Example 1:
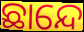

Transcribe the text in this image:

ଛାନ୍ଦେ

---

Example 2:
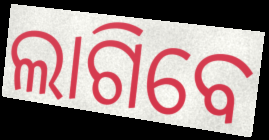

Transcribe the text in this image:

ଲାଗିବେ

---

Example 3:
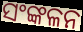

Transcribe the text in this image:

ସଂଙ୍କଳନ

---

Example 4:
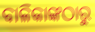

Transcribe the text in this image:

ବାଳିକାଙ୍କଠାରୁ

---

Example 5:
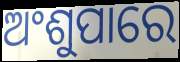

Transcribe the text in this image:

ଅଂଶୁପାରେ